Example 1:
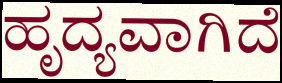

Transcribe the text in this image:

ಹೃದ್ಯವಾಗಿದೆ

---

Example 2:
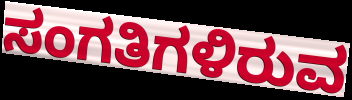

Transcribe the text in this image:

ಸಂಗತಿಗಳಿರುವ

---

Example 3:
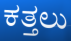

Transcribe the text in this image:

ಕತ್ತಲು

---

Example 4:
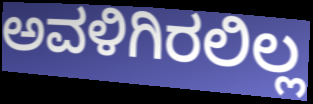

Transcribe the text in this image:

ಅವಳಿಗಿರಲಿಲ್ಲ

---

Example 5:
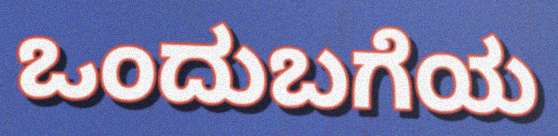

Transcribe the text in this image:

ಒಂದುಬಗೆಯ